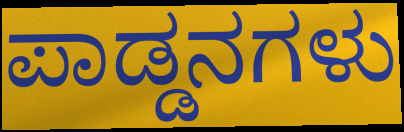
ಪಾಡ್ಡನಗಳು